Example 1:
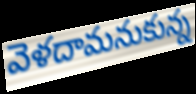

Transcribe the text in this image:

వెళదామనుకున్న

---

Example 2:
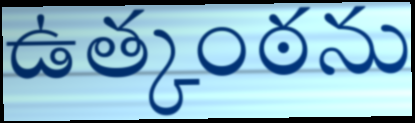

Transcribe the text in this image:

ఉత్కంఠను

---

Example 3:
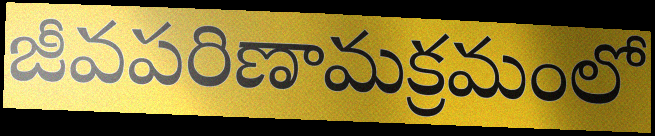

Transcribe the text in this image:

జీవపరిణామక్రమంలో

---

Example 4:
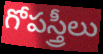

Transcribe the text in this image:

గోపస్త్రీలు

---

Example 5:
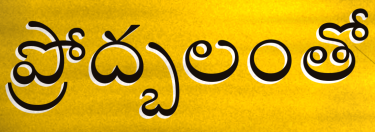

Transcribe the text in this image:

ప్రోద్బలంతో